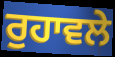
ਰੁਹਾਵਲੇ